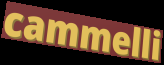
cammelli